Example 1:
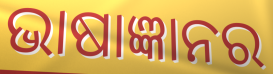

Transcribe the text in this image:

ଭାଷାଜ୍ଞାନର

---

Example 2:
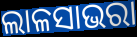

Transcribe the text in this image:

ଲାଳସାଭରା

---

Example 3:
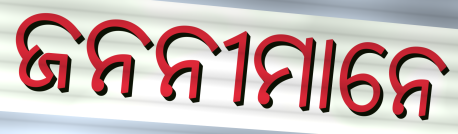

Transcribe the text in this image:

ଜନନୀମାନେ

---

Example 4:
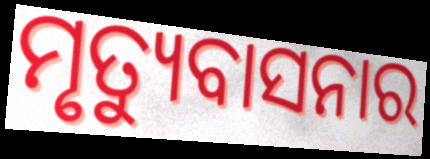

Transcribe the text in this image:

ମୃତ୍ୟୁବାସନାର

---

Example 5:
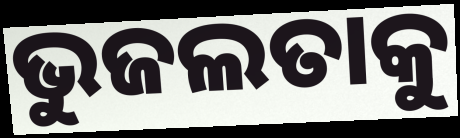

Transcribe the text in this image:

ଭୁଜଲତାକୁ